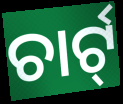
ଚାର୍ଟ୍